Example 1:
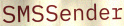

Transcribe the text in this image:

SMSSender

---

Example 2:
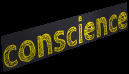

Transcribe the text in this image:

conscience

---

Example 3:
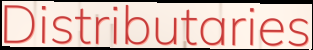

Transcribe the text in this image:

Distributaries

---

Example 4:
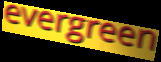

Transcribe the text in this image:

evergreen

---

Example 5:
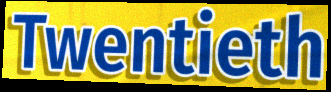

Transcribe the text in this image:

Twentieth